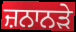
ਜ਼ਨਾਨੜੇ